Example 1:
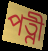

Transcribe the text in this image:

পত্নী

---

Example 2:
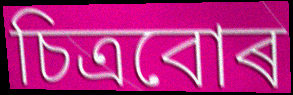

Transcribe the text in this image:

চিত্ৰবোৰ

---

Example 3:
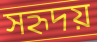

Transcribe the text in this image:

সহৃদয়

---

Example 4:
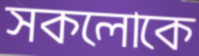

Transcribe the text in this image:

সকলোকে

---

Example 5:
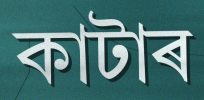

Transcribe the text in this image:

কাটাৰ